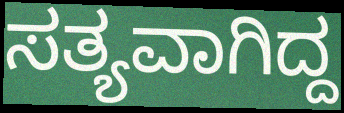
ಸತ್ಯವಾಗಿದ್ದ